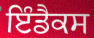
ਇੰਡੈਕਸ